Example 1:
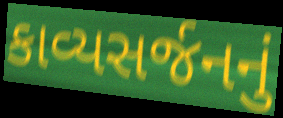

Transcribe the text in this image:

કાવ્યસર્જનનું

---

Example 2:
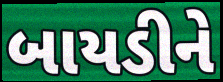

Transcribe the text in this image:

બાયડીને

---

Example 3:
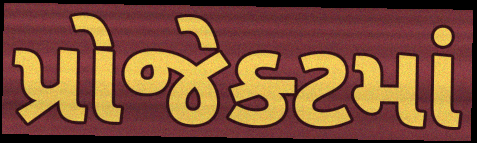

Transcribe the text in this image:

પ્રોજેક્ટમાં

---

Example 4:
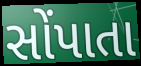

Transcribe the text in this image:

સોંપાતા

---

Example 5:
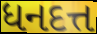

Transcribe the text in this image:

ધનદત્ત